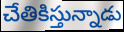
చేతికిస్తున్నాడు